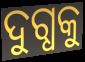
ଦୁଗ୍ଧକୁ